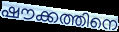
ഷൗക്കത്തിനെ